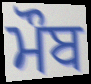
ਮੌਬ